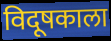
विदूषकाला